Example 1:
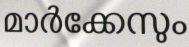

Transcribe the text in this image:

മാർക്കേസും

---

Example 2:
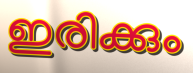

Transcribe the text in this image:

ഇരിക്കും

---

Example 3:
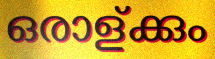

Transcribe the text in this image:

ഒരാള്ക്കും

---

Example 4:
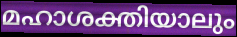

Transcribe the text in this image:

മഹാശക്തിയാലും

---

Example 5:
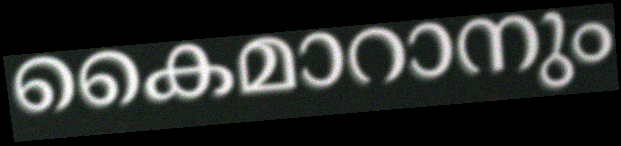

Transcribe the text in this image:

കൈമാറാനും